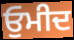
ਓੁਮੀਦ